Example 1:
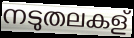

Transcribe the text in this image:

നടുതലകള്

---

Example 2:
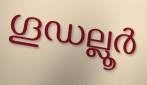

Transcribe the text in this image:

ഗൂഡല്ലൂർ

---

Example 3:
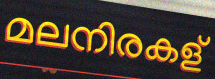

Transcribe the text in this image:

മലനിരകള്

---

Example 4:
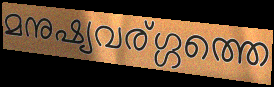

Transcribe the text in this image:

മനുഷ്യവര്ഗ്ഗത്തെ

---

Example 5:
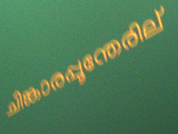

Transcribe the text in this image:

ചിങ്കാരപ്പൂന്തേരില്